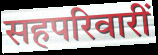
सहपरिवारीं